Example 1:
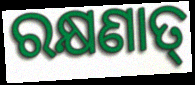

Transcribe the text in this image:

ରକ୍ଷଣାତ୍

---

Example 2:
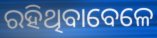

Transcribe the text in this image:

ରହିଥିବାବେଳେ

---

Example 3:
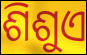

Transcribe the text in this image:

ଶିଶୁଏ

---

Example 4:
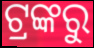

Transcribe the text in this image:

ଟ୍ରଙ୍କରୁ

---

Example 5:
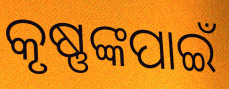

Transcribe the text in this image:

କୃଷ୍ଣଙ୍କପାଇଁ